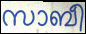
സാബീ